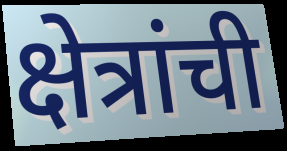
क्षेत्रांची